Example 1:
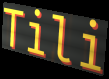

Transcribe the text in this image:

Tili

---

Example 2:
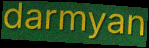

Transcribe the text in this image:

darmyan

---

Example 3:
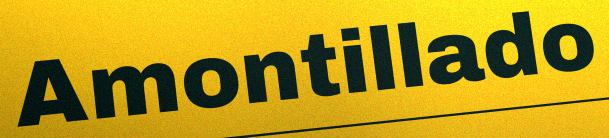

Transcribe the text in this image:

Amontillado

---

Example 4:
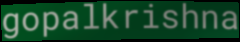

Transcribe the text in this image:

gopalkrishna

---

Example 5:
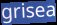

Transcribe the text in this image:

grisea